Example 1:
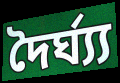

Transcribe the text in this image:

দৈৰ্ঘ্য্য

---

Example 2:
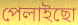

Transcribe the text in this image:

পেলাইছো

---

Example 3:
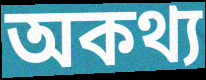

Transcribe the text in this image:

অকথ্য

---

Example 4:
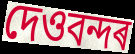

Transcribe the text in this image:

দেওবন্দৰ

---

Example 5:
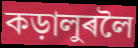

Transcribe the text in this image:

কড়ালুৰলৈ